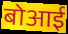
बोआई